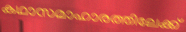
കഥാസമാഹാരത്തിലേക്ക്